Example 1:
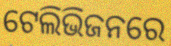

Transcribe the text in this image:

ଟେଲିଭିଜନରେ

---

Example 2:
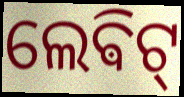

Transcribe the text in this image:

ଲେଵିଟ୍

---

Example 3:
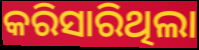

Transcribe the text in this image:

କରିସାରିଥିଲା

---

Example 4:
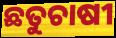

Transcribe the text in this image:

ଛତୁଚାଷୀ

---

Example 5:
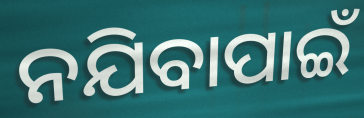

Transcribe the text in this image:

ନଯିବାପାଇଁ